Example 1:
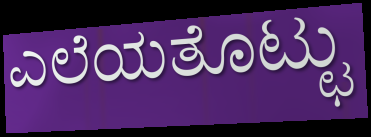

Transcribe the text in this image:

ಎಲೆಯತೊಟ್ಟು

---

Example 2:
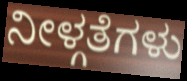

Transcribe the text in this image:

ನೀಳ್ಗತೆಗಳು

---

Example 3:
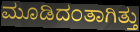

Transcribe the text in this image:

ಮೂಡಿದಂತಾಗಿತ್ತು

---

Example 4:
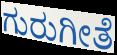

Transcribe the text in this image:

ಗುರುಗೀತೆ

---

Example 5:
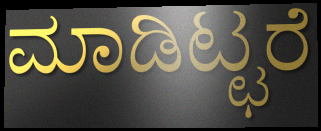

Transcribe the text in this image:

ಮಾಡಿಟ್ಟರೆ